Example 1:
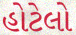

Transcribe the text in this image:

હોટેલો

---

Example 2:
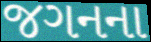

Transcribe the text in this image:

જગનના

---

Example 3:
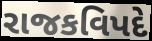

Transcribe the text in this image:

રાજકવિપદે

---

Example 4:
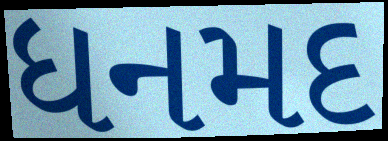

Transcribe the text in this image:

ધનમદ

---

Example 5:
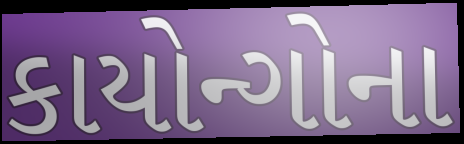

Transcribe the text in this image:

કાયોન્ગોના